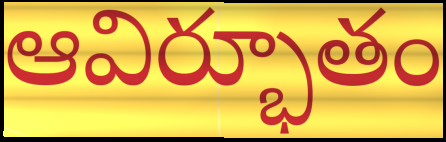
ఆవిర్భూతం